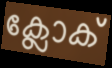
ക്ലോക്